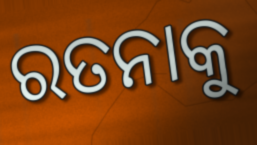
ରତନାକୁ